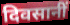
दिवसानीं